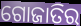
ଗୋଜାତିର